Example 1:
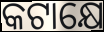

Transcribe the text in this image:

କଟାକ୍ଷେ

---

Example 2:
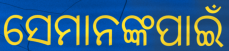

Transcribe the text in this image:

ସେମାନଙ୍କପାଇଁ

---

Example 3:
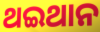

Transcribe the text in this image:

ଥଇଥାନ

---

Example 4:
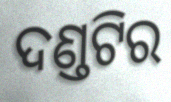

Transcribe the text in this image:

ଦଣ୍ଡଟିର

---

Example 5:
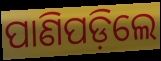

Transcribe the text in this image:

ପାଣିପଡ଼ିଲେ